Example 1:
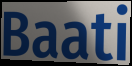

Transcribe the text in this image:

Baati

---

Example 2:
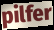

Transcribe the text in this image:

pilfer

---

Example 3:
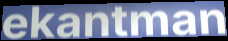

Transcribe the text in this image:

ekantman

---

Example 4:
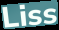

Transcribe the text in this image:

Liss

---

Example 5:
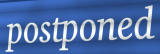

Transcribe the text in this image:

postponed